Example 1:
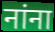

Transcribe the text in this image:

नांना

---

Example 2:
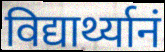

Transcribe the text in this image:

विद्यार्थ्यानं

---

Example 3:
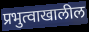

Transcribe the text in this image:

प्रभुत्वाखालील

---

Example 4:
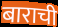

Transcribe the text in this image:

बाराची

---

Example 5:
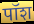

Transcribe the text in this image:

पॉश